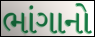
ભાંગાનો